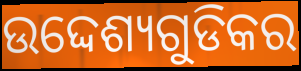
ଉଦ୍ଦେଶ୍ୟଗୁଡିକର